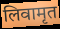
लिवामृत